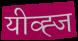
यीव्ह्ज